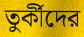
তুর্কীদের